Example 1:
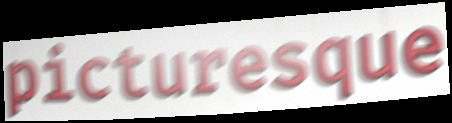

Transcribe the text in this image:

picturesque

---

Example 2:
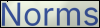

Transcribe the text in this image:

Norms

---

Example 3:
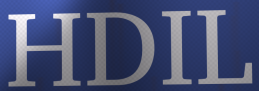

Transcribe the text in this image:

HDIL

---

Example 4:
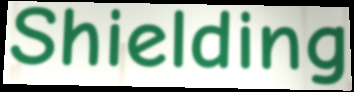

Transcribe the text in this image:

Shielding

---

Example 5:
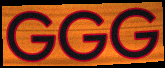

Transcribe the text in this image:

GGG